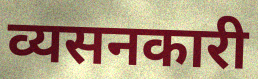
व्यसनकारी